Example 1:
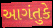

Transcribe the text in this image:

આગંતુકે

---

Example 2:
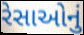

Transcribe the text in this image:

રેસાઓનું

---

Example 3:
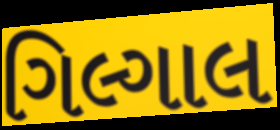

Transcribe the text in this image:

ગિલ્ગાલ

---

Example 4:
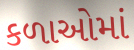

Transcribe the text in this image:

કળાઓમાં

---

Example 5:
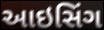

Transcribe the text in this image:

આઇસિંગ